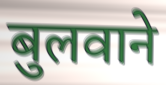
बुलवाने